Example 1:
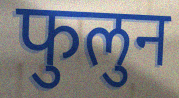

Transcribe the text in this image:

फुलुन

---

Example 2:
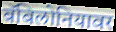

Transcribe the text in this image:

बॅबिलोनियावर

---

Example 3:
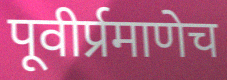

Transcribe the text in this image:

पूवीर्प्रमाणेच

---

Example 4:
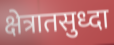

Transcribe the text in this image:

क्षेत्रातसुध्दा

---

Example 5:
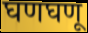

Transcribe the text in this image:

घणघणू